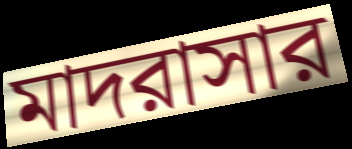
মাদরাসার